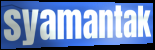
syamantak